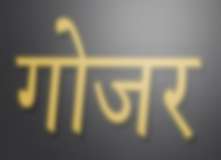
गोजर